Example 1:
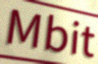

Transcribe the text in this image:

Mbit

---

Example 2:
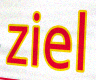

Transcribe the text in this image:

ziel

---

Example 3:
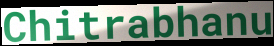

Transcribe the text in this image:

Chitrabhanu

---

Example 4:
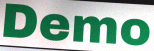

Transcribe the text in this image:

Demo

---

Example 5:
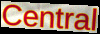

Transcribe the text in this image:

Central